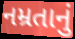
નમ્રતાનું